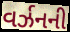
વર્ઝનની